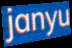
janyu